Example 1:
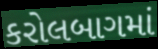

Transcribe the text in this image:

કરોલબાગમાં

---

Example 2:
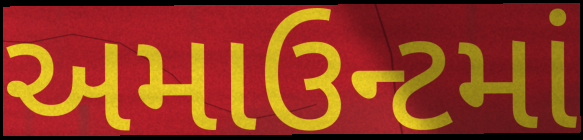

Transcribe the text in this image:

અમાઉન્ટમાં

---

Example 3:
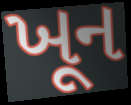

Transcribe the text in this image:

ખૂન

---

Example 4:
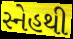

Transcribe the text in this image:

સ્નેહથી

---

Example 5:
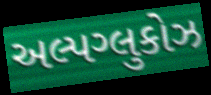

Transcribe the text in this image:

અલ્પગ્લુકોઝ